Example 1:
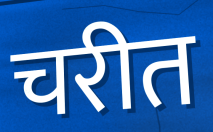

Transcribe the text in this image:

चरीत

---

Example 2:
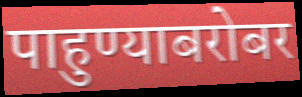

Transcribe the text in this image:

पाहुण्याबरोबर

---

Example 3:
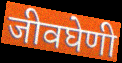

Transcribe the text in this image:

जीवघेणी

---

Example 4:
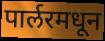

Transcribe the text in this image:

पार्लरमधून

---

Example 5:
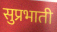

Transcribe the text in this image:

सुप्रभाती